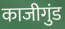
काजीगुंड